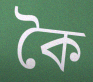
কৈ